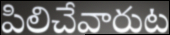
పిలిచేవారుట